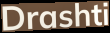
Drashti